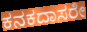
ಕನಕದಾಸರೇ